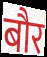
बौर